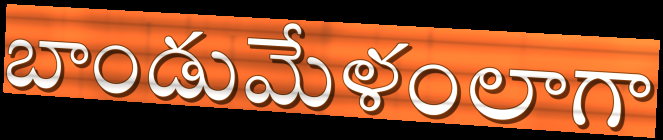
బాండుమేళంలాగా